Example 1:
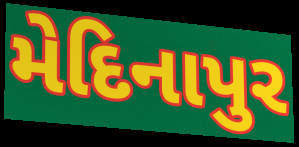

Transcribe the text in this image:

મેદિનાપુર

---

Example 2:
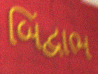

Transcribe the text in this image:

બિંદ્વાભ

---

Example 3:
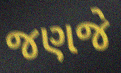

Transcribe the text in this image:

જણજે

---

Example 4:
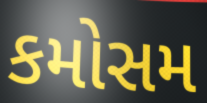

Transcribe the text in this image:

કમોસમ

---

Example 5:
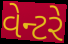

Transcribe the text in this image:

વેન્ટરે